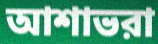
আশাভরা